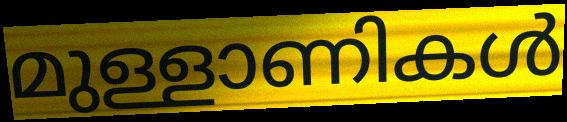
മുള്ളാണികൾ